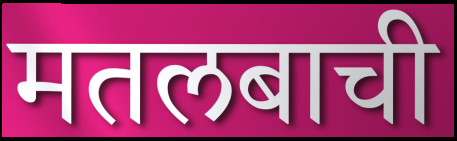
मतलबाची